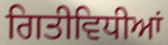
ਗਿਤੀਵਿਧੀਆਂ